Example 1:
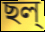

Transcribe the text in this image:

ছল্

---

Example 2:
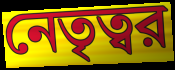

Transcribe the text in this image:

নেতৃত্বর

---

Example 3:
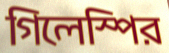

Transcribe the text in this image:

গিলেস্পির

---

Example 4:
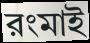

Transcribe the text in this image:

রংমাই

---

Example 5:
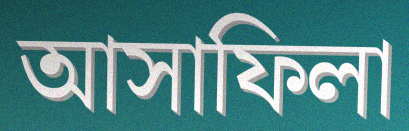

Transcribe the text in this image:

আসাফিলা